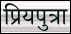
प्रियपुत्रा